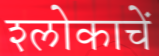
श्लोकाचें